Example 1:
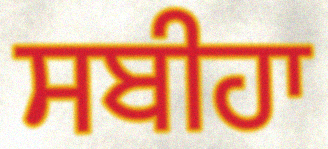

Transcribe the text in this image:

ਸਬੀਹਾ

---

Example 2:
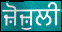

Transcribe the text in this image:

ਜ਼ੋਜ਼ੁਲੀ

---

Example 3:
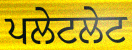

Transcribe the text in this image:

ਪਲੇਟਲੇਟ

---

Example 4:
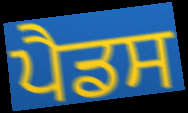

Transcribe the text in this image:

ਪੈਡਸ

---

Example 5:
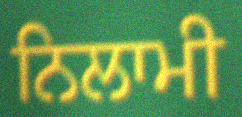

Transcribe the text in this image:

ਨਿਲਾਮੀ